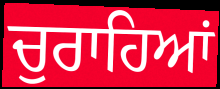
ਚੁਰਾਹਿਆਂ